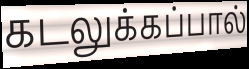
கடலுக்கப்பால்